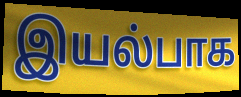
இயல்பாக